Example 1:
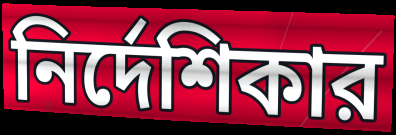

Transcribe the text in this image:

নির্দেশিকার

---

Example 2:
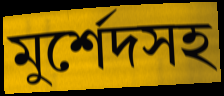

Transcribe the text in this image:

মুর্শেদসহ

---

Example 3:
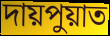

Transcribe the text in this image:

দায়পুয়াত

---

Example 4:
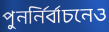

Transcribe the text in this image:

পুনর্নির্বাচনেও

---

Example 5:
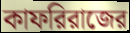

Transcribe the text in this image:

কাফরিরাজের